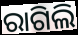
ରାଗିଲି